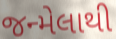
જન્મેલાથી